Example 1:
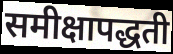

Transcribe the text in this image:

समीक्षापद्धती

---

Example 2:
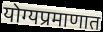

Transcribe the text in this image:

योग्यप्रमाणात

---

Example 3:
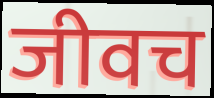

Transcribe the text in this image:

जीवच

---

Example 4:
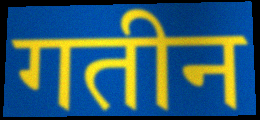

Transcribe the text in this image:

गतीन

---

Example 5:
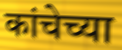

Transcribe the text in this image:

कांचेच्या